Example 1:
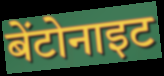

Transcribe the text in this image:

बेंटोनाइट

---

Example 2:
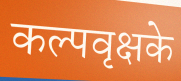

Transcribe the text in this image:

कल्पवृक्षके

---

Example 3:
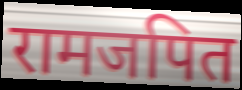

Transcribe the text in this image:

रामजपित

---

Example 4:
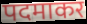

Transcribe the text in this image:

पदमाकर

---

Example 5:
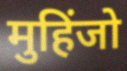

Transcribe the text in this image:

मुहिंजो